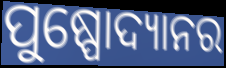
ପୁଷ୍ପୋଦ୍ୟାନର